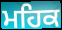
ਮਹਿਕ